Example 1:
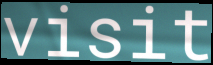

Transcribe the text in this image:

visit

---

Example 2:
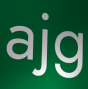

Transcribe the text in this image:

ajg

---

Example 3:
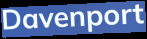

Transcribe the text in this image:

Davenport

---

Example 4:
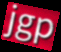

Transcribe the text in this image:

jgp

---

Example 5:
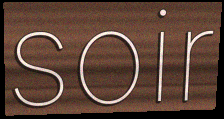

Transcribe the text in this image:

soir